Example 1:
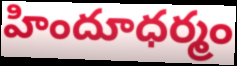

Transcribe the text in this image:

హిందూధర్మం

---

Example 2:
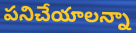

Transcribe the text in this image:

పనిచేయాలన్నా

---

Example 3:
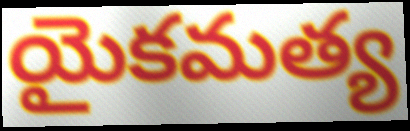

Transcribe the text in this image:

యైకమత్య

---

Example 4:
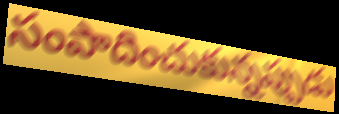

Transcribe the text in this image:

సంపాదించుకున్నప్పుడు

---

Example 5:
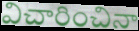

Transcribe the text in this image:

విచారించినా